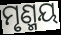
ମୃଣ୍ମୟ